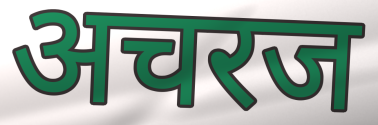
अचरज